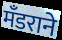
मँडराने